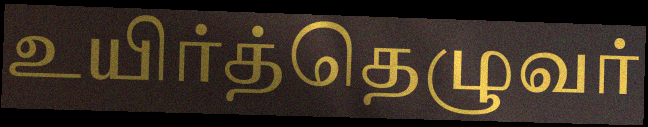
உயிர்த்தெழுவர்